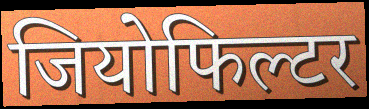
जियोफिल्टर